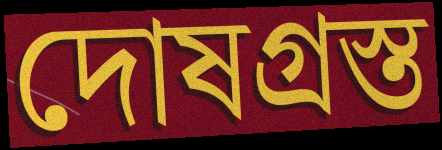
দোষগ্রস্ত